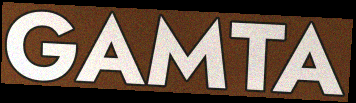
GAMTA